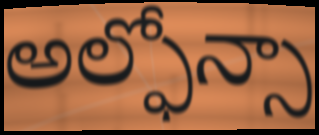
అల్ఫోన్సా